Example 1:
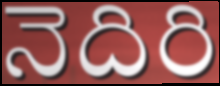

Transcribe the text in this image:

నెదిరి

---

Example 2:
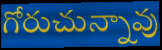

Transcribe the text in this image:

గోరుచున్నావు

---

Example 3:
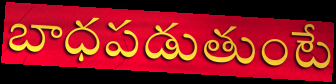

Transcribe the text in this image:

బాధపడుతుంటే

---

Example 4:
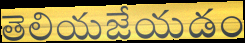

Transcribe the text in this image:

తెలియజేయడం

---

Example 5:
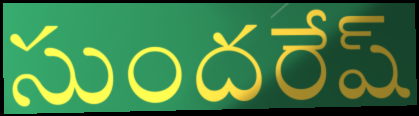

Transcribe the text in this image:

సుందరేష్